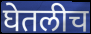
घेतलीच